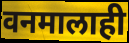
वनमालाही